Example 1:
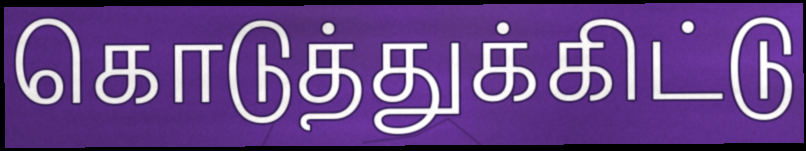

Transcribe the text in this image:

கொடுத்துக்கிட்டு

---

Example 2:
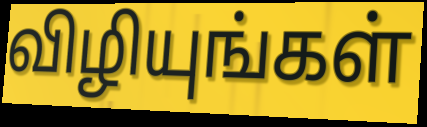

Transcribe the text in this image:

விழியுங்கள்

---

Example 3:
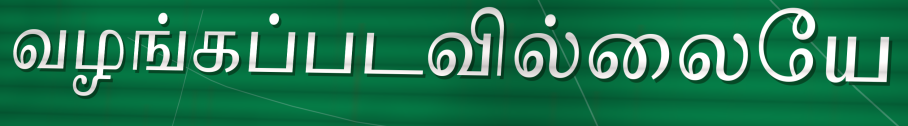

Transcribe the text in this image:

வழங்கப்படவில்லையே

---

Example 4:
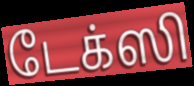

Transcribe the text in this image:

டேக்ஸி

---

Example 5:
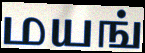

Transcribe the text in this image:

மயங்